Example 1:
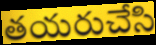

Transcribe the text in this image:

తయరుచేసి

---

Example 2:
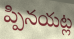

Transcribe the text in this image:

ప్పినయట్ల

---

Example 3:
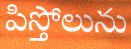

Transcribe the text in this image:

పిస్తోలును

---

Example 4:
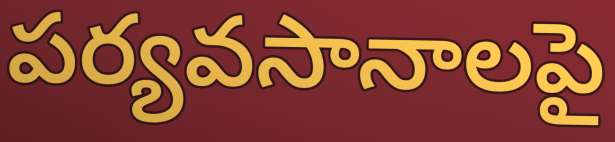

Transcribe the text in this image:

పర్యవసానాలపై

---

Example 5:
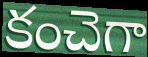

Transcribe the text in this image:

కంచెగా